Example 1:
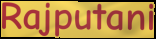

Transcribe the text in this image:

Rajputani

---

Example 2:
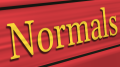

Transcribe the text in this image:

Normals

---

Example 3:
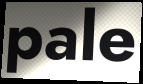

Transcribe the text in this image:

pale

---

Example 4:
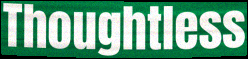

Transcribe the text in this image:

Thoughtless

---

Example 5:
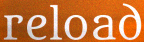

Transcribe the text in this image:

reload